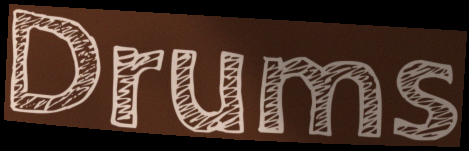
Drums